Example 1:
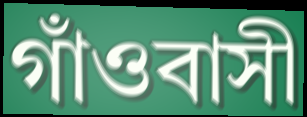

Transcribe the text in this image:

গাঁওবাসী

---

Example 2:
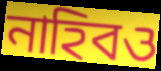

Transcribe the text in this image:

নাহিবও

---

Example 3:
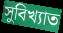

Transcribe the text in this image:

সুবিখ্যাত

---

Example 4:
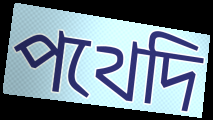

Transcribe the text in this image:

পথেদি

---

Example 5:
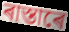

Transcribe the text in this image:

ৰাস্তাৰে